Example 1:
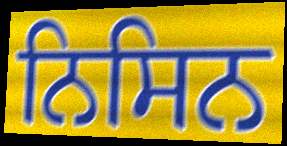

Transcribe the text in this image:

ਨਿਸਿਨ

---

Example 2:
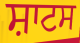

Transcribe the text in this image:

ਸ਼ਾਟਸ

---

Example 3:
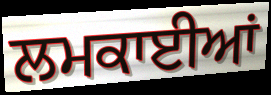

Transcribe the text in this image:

ਲਮਕਾਈਆਂ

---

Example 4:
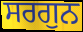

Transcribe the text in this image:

ਸਰਗੁਨ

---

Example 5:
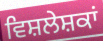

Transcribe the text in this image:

ਵਿਸ਼ਲੇਸ਼ਕਾਂ